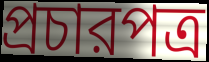
প্রচারপত্র